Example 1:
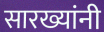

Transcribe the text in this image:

सारख्यांनी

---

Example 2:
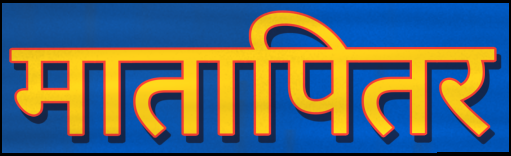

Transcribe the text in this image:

मातापितर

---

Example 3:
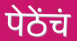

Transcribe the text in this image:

पेठेंचं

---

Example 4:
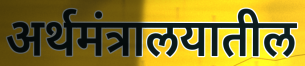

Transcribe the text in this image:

अर्थमंत्रालयातील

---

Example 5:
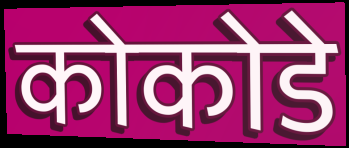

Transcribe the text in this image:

कोकोडे